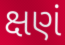
ક્ષણં